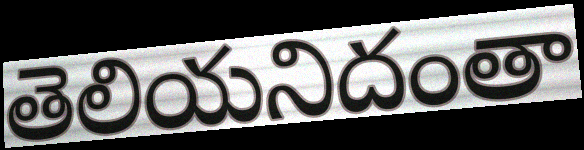
తెలియనిదంతా